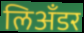
लिअँडर